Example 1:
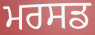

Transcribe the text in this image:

ਮਰਸਡ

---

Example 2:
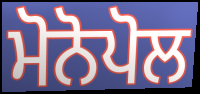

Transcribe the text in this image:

ਮੋਨੋਪੋਲ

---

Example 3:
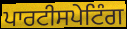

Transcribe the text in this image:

ਪਾਰਟੀਸਪੇਟਿੰਗ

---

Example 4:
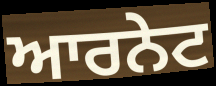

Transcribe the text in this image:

ਆਰਨੇਟ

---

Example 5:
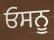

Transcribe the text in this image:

ਓਸਨੂ